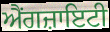
ਐਂਗਜ਼ਾਇਟੀ